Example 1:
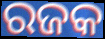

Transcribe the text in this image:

ରଜକ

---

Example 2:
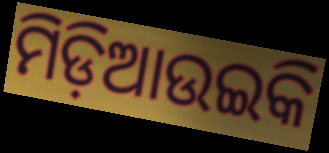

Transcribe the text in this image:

ମିଡ଼ିଆଉଇକି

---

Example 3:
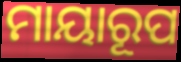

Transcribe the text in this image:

ମାୟାରୂପ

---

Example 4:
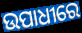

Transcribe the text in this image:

ଉପାଧୀରେ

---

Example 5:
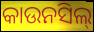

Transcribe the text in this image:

କାଉନସିଲ୍